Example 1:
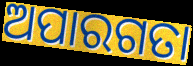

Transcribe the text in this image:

ଅପାରଗତା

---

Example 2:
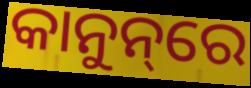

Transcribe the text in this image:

କାନୁନ୍‌ରେ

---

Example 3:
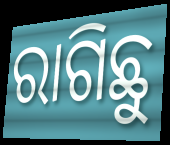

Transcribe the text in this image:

ରାଗିଛୁ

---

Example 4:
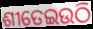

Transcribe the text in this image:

ଶୀତେଇଉଠି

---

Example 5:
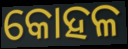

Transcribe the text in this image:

କୋହଳ